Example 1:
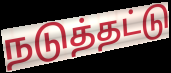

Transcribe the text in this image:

நடுத்தட்டு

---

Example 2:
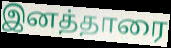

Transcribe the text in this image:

இனத்தாரை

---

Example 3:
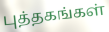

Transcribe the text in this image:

புத்தகங்கள்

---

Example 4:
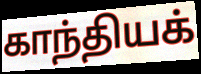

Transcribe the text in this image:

காந்தியக்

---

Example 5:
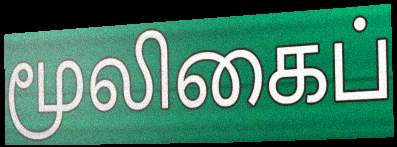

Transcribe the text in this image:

மூலிகைப்